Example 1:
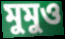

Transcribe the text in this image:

মুমুও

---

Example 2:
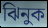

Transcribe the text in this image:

ঝিনুক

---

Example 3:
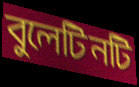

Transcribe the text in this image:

বুলেটিনটি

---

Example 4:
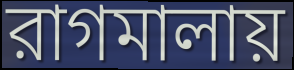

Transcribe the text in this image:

রাগমালায়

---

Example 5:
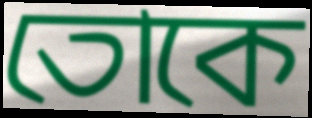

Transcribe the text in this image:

তোকে